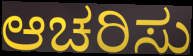
ಆಚರಿಸು